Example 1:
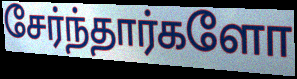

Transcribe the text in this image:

சேர்ந்தார்களோ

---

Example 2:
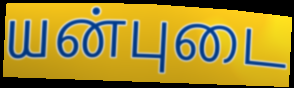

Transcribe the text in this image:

யன்புடை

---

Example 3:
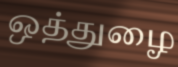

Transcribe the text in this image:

ஒத்துழை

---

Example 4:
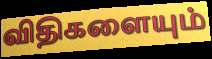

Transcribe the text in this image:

விதிகளையும்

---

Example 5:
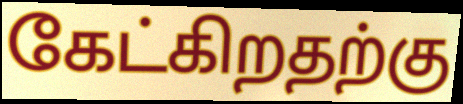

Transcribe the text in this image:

கேட்கிறதற்கு